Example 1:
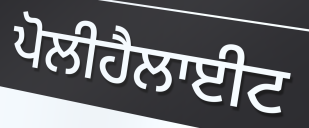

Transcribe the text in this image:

ਪੋਲੀਹੈਲਾਈਟ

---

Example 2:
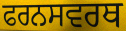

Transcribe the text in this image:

ਫਰਨਸਵਰਥ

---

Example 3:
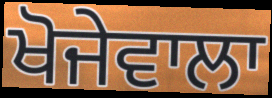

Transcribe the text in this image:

ਖੋਜੇਵਾਲਾ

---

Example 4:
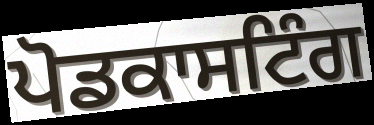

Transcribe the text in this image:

ਪੋਡਕਾਸਟਿੰਗ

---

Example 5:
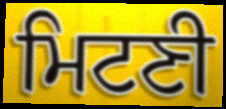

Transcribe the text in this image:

ਮਿਟਣੀ